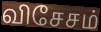
விசேசம்